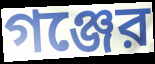
গঞ্জের